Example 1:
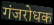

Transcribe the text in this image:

गंजरोधक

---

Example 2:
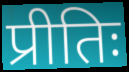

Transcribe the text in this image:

प्रीतिः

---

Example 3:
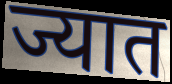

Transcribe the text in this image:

ज्यात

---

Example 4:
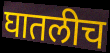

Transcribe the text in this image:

घातलीच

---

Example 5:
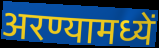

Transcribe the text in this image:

अरण्यामध्यें